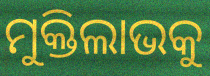
ମୁକ୍ତିଲାଭକୁ